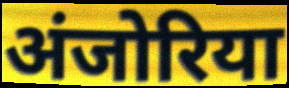
अंजोरिया